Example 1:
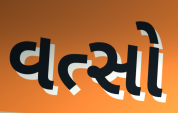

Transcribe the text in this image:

વત્સો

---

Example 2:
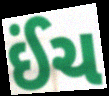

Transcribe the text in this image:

ઈંચ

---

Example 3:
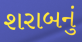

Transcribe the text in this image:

શરાબનું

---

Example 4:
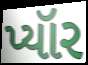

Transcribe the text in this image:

પ્યૉર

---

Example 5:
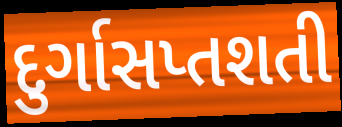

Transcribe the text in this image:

દુર્ગાસપ્તશતી